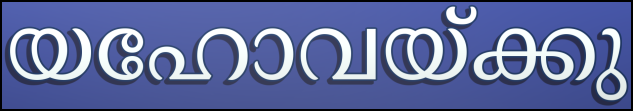
യഹോവയ്ക്കു